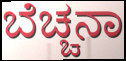
ಬೆಚ್ಚನಾ